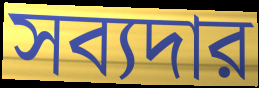
সব্যদার